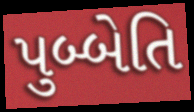
પુબ્બેતિ